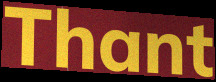
Thant